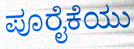
ಪೂರೈಕೆಯು